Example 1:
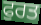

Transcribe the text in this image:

ਫੁਰਤ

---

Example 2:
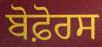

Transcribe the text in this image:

ਬੋਫ਼ੋਰਸ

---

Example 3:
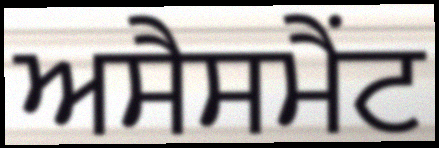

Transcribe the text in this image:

ਅਸੈਸਮੈਂਟ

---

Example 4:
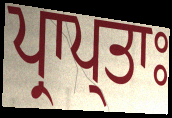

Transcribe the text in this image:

ਪ੍ਰਾਪ੍ਤਾਃ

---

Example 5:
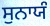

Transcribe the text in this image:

ਸੁਨਾਯੰ